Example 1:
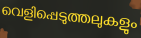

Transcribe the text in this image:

വെളിപ്പെടുത്തലുകളും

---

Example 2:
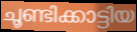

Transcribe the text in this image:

ചൂണ്ടിക്കാട്ടിയ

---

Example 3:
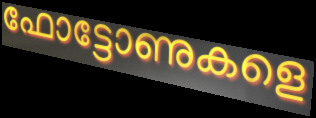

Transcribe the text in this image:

ഫോട്ടോണുകളെ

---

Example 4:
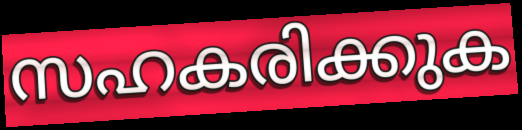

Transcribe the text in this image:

സഹകരിക്കുക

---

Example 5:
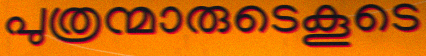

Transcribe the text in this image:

പുത്രന്മാരുടെകൂടെ